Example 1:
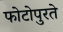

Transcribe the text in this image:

फोटोपुरते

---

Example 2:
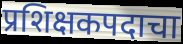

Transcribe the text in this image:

प्रशिक्षकपदाचा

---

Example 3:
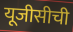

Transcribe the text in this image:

यूजीसीची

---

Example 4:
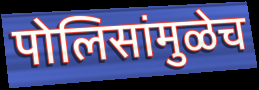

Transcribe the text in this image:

पोलिसांमुळेच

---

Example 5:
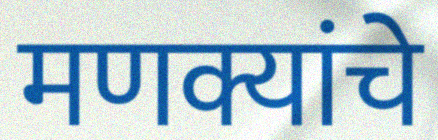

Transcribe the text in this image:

मणक्यांचे